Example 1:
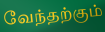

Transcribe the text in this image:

வேந்தற்கும்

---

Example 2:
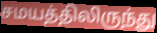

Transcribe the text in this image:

சமயத்திலிருந்து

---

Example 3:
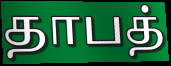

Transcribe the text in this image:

தாபத்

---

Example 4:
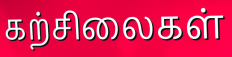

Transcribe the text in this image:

கற்சிலைகள்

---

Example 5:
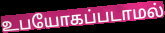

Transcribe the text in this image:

உபயோகப்படாமல்